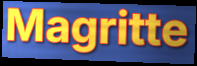
Magritte